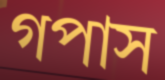
গপাস